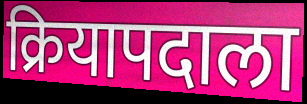
क्रियापदाला